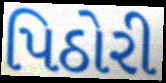
પિઠોરી